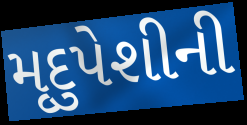
મૃદુપેશીની